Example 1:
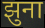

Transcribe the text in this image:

झुना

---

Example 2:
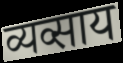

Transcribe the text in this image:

व्यव्साय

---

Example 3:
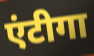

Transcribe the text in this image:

एंटीगा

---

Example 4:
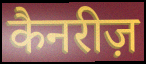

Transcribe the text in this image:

कैनरीज़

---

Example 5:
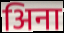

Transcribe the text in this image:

अिना